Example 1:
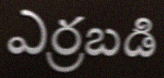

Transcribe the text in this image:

ఎర్రబడి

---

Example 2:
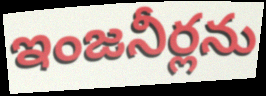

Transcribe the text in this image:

ఇంజనీర్లను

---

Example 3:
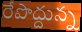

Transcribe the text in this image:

రేపొద్దున్న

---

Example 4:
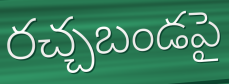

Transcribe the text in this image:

రచ్చబండపై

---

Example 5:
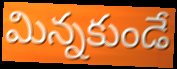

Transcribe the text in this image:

మిన్నకుండే